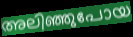
അലിഞ്ഞുപോയ